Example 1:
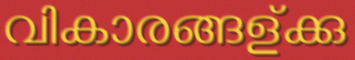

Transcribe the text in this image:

വികാരങ്ങള്ക്കു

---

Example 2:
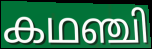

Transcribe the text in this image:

കഥഞ്ചി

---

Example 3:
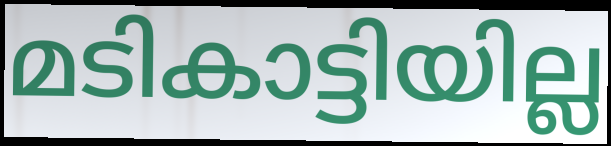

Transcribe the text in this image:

മടികാട്ടിയില്ല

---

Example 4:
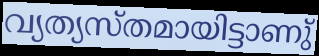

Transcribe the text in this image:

വ്യത്യസ്തമായിട്ടാണു്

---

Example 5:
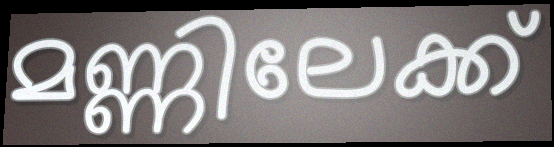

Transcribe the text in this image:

മണ്ണിലേക്ക്